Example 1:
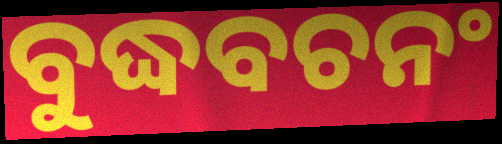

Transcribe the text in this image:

ବୁଦ୍ଧବଚନଂ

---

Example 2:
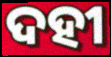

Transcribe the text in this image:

ଦହୀ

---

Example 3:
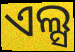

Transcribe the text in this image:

ଏଲ୍ସ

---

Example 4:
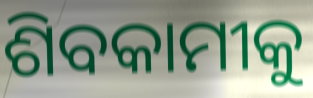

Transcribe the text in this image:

ଶିବକାମୀକୁ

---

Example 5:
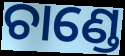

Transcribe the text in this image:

ଚାଣ୍ଡେ